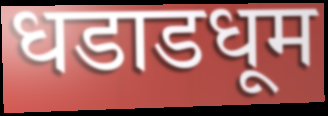
धडाडधूम